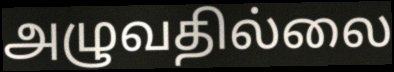
அழுவதில்லை